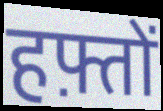
हफ़्तों